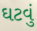
ઘટવું